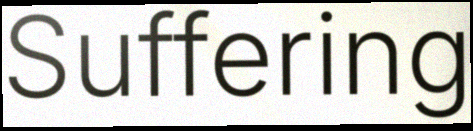
Suffering